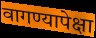
वागण्यापेक्षा